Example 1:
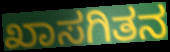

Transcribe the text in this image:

ಖಾಸಗಿತನ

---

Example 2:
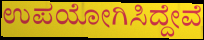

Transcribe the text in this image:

ಉಪಯೋಗಿಸಿದ್ದೇವೆ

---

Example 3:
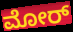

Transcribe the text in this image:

ಮೋರ್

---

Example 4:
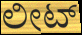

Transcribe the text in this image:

ಲೀಟ್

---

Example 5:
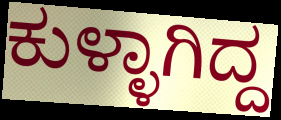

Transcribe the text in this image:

ಕುಳ್ಳಾಗಿದ್ದ